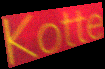
Kotte